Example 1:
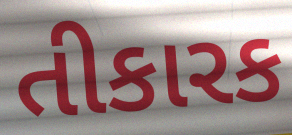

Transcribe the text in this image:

તીકારક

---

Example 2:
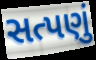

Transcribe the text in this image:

સત્પણું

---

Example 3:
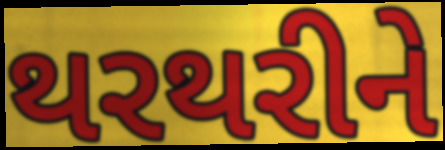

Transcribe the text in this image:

થરથરીને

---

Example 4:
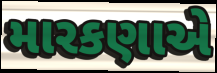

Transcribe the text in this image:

મારકણાએ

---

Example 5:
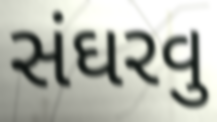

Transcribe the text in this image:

સંઘરવુ